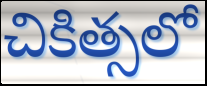
చికిత్సలో